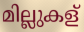
മില്ലുകള്